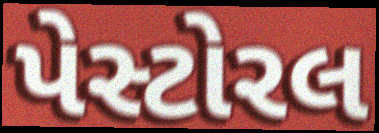
પેસ્ટોરલ